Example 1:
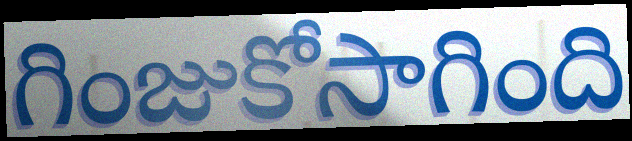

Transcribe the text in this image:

గింజుకోసాగింది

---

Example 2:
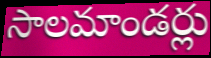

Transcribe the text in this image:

సాలమాండర్లు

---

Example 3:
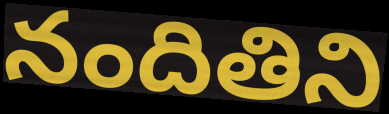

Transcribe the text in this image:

నందితిని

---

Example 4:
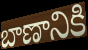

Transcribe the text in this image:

బాణానికి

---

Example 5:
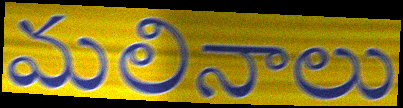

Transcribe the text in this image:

మలినాలు